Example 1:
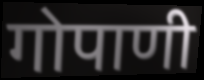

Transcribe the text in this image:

गोपाणी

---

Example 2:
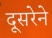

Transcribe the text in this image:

दूसरेने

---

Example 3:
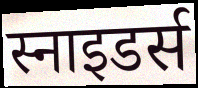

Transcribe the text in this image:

स्नाइडर्स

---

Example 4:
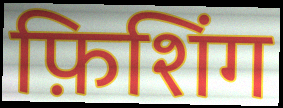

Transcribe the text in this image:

फ़िशिंग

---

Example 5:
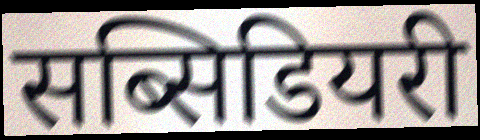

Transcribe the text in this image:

सब्सिडियरी